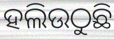
ହଲିଉଠୁଛି